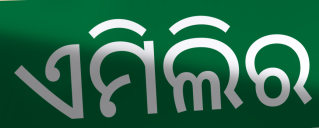
ଏମିଲିର